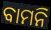
ବାମନି